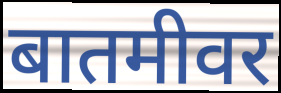
बातमीवर